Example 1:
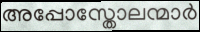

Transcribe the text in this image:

അപ്പോസ്തോലന്മാർ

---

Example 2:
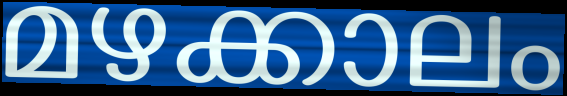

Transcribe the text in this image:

മഴക്കാലം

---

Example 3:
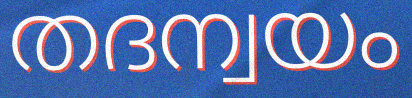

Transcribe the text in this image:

തദന്വയം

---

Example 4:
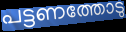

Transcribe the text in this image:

പട്ടണത്തോടു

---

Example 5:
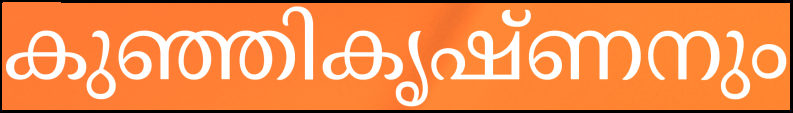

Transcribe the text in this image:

കുഞ്ഞികൃഷ്ണനും